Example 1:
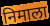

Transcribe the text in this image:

निमाला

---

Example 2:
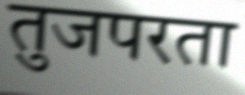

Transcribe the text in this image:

तुजपरता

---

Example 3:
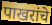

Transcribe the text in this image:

पाखरांचे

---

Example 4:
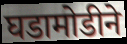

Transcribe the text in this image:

घडामोडीने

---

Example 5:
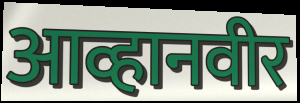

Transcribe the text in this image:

आव्हानवीर